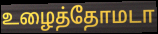
உழைத்தோமடா